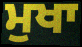
ਮੁਖਾ